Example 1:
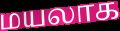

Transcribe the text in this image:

மயலாக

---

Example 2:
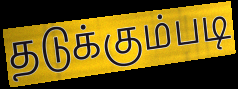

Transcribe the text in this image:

தடுக்கும்படி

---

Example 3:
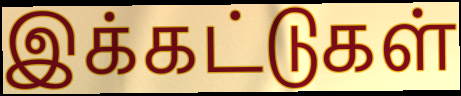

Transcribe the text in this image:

இக்கட்டுகள்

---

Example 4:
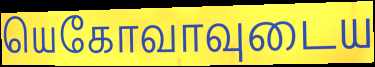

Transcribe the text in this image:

யெகோவாவுடைய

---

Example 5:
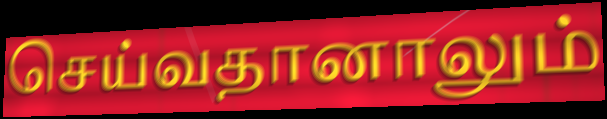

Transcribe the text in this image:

செய்வதானாலும்